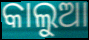
କାଲୁଆ